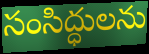
సంసిద్ధులను